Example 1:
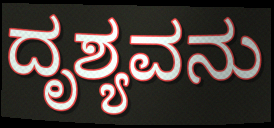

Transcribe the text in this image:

ದೃಶ್ಯವನು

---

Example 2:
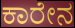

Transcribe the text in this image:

ಕಾರೇನ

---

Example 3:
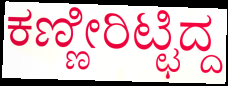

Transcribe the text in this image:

ಕಣ್ಣೀರಿಟ್ಟಿದ್ದ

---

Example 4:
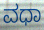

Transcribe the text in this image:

ವಧಾ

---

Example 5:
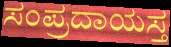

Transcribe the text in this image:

ಸಂಪ್ರದಾಯಸ್ತ